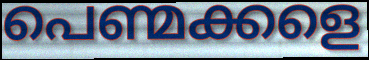
പെണ്മക്കളെ